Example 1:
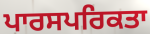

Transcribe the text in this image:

ਪਾਰਸਪਰਿਕਤਾ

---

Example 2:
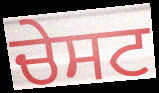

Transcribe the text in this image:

ਚੇਸਟ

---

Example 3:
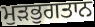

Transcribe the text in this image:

ਮੁੜਭੁਗਤਾਨ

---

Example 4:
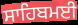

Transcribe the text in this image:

ਸਾਹਿਬਮਈ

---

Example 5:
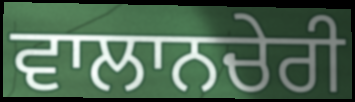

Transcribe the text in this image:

ਵਾਲਾਨਚੇਰੀ